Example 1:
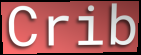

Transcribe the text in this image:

Crib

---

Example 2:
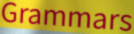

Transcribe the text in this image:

Grammars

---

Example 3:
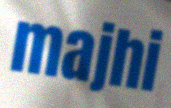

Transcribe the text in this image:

majhi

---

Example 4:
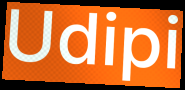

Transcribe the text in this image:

Udipi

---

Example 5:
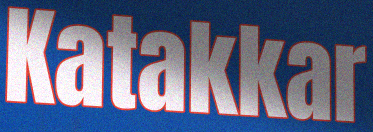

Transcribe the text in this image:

Katakkar